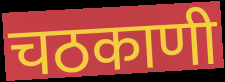
चठकाणी